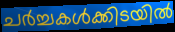
ചർച്ചകൾക്കിടയിൽ